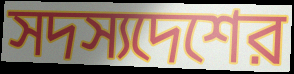
সদস্যদেশের